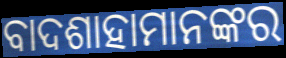
ବାଦଶାହାମାନଙ୍କର